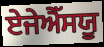
ਏਜੇਐੱਸਯੂ